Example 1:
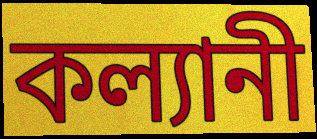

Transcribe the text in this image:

কল্যানী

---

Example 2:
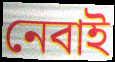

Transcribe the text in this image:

নেবাই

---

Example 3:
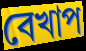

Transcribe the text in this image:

বেখাপ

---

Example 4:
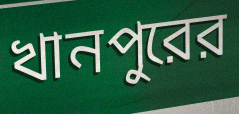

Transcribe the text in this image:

খানপুরের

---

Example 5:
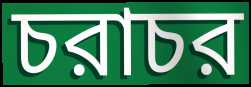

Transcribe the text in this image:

চরাচর